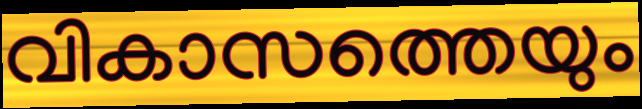
വികാസത്തെയും